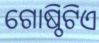
ଗୋଷ୍ଠିଟିଏ